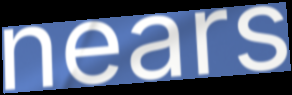
nears